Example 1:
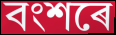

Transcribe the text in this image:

বংশৰে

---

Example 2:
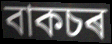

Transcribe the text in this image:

বাকচৰ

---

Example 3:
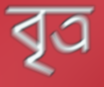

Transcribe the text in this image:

বৃত্ৰ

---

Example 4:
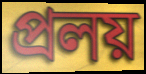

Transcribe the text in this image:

প্ৰলয়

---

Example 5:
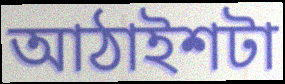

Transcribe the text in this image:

আঠাইশটা